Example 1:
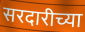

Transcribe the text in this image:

सरदारीच्या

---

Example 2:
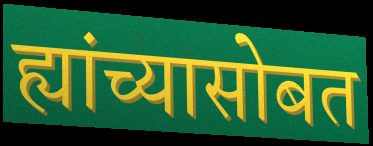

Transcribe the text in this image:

ह्यांच्यासोबत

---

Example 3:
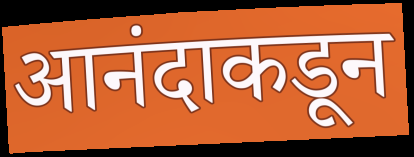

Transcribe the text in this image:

आनंदाकडून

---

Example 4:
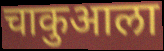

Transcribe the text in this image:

चाकुआला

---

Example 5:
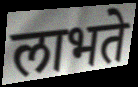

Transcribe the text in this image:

लाभते